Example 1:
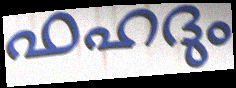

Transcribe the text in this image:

ഫഹദും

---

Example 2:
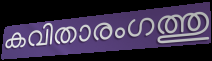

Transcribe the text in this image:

കവിതാരംഗത്തു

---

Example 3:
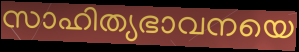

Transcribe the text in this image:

സാഹിത്യഭാവനയെ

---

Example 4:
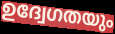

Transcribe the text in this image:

ഉദ്വേഗതയും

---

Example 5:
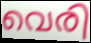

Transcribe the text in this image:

വെരി